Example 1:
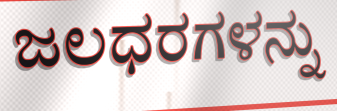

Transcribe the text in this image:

ಜಲಧರಗಳನ್ನು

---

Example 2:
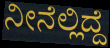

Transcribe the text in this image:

ನೀನೆಲ್ಲಿದ್ದೆ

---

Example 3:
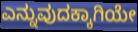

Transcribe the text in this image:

ಎನ್ನುವುದಕ್ಕಾಗಿಯೇ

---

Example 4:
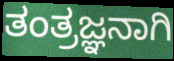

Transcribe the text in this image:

ತಂತ್ರಜ್ಞನಾಗಿ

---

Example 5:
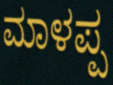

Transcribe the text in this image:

ಮಾಳಪ್ಪ